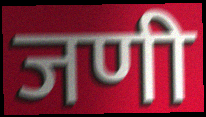
जणी